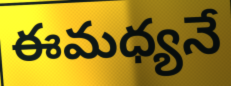
ఈమధ్యనే